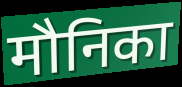
मौनिका